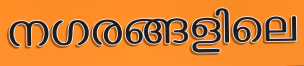
നഗരങ്ങളിലെ